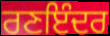
ਰਣਇੰਦਰ